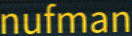
nufman